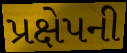
પ્રક્ષેપની